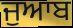
ਜੁਆਬ